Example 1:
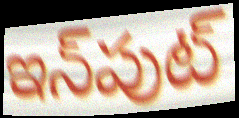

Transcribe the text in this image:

ఇన్‌పుట్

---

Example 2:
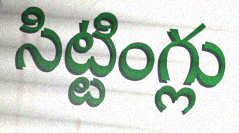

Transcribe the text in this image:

సిట్టింగ్లు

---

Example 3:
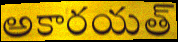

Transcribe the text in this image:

అకారయత్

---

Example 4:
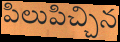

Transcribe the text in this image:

పిలుపిచ్చిన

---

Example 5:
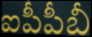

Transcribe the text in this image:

ఐపీపీబీ